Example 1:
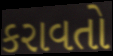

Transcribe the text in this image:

કરાવતો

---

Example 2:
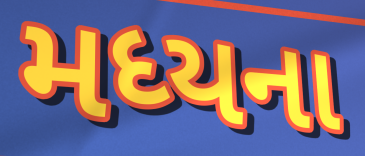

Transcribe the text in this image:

મધ્યના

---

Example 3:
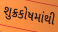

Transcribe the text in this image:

શુક્રકોષમાંથી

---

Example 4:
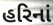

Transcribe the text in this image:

હરિનાં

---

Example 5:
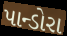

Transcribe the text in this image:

પાન્ડોરા